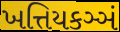
ખત્તિયકઞ્ઞં